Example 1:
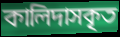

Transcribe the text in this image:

কালিদাসকৃত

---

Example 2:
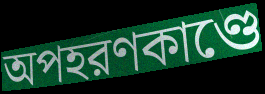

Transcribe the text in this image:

অপহরণকাণ্ডে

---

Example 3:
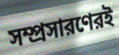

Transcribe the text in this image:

সম্প্রসারণেরই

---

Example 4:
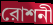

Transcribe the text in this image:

রোশনী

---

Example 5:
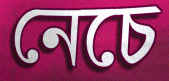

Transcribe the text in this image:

নেচে